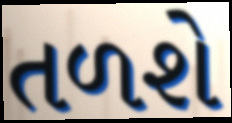
તળશે